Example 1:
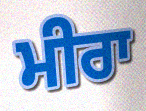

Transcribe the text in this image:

ਮੀਰਾ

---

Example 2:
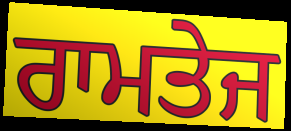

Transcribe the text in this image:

ਰਾਮਤੇਜ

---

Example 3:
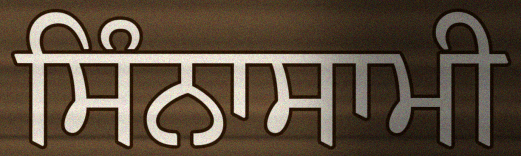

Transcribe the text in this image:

ਸਿੰਨਾਸਾਮੀ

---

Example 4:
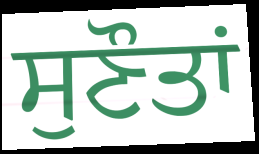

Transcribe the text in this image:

ਸੁਣੌਤਾਂ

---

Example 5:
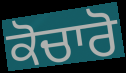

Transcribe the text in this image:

ਕੋਚਾਰੋ